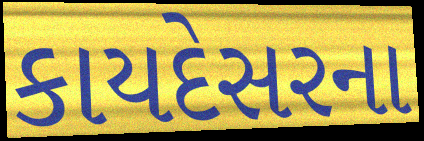
કાયદેસરના